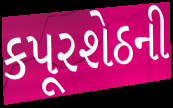
કપૂરશેઠની